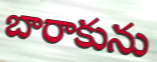
బారాకును